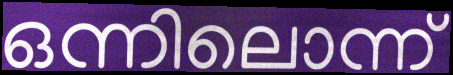
ഒന്നിലൊന്ന്